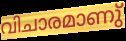
വിചാരമാണു്